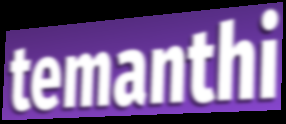
temanthi